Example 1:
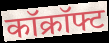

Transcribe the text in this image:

कॉक्रॉफ्ट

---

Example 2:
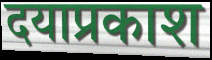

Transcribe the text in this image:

दयाप्रकाश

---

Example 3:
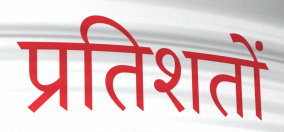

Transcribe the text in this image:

प्रतिशतों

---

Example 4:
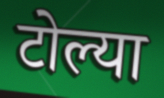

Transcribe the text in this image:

टोल्या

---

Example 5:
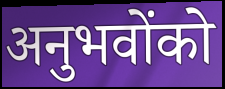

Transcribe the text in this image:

अनुभवोंको